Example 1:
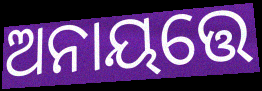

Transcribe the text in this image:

ଅନାୟତ୍ତେ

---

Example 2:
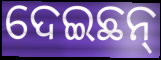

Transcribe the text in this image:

ଦେଇଛନ୍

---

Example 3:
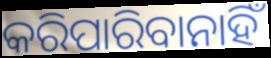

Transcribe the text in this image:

କରିପାରିବାନାହିଁ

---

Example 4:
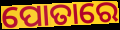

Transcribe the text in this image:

ପୋତାରେ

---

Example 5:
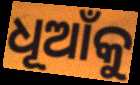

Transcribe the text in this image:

ଧୂଆଁକୁ